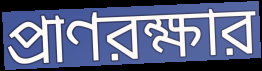
প্রাণরক্ষার